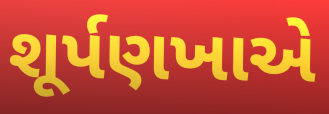
શૂર્પણખાએ